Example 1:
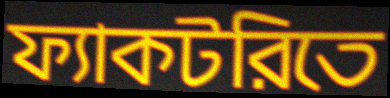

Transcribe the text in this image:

ফ্যাকটরিতে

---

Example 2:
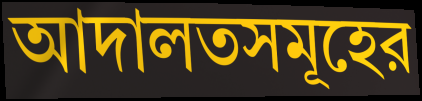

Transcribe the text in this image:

আদালতসমূহের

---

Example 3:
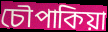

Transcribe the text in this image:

চৌপাকিয়া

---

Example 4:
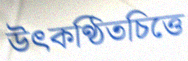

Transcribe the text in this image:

উৎকণ্ঠিতচিত্তে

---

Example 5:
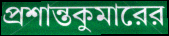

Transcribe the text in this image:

প্রশান্তকুমারের